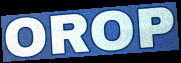
OROP